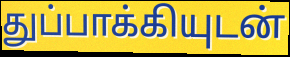
துப்பாக்கியுடன்